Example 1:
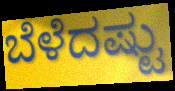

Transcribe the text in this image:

ಬೆಳೆದಷ್ಟು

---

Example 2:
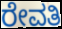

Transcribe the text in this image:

ರೇವತಿ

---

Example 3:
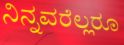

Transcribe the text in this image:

ನಿನ್ನವರೆಲ್ಲರೂ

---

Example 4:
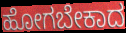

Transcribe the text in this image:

ಹೋಗಬೇಕಾದ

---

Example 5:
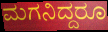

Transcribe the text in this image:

ಮಗನಿದ್ದರೂ